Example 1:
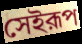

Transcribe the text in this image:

সেইরূপ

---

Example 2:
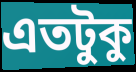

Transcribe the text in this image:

এতটুকু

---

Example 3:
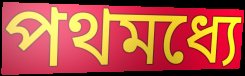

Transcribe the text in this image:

পথমধ্যে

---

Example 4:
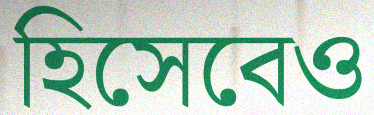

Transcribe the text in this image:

হিসেবেও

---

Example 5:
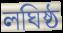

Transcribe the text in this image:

লঘিষ্ঠ